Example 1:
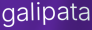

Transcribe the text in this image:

galipata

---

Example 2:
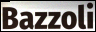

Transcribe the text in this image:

Bazzoli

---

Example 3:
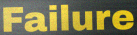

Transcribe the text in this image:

Failure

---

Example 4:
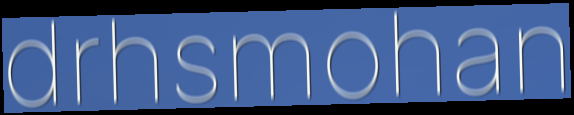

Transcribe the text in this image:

drhsmohan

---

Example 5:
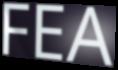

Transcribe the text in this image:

FEA